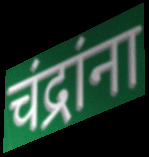
चंद्रांना